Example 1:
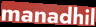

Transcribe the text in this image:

manadhil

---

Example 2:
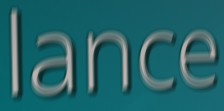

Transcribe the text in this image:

lance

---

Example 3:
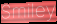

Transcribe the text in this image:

Smiley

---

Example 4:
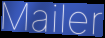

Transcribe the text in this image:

Mailer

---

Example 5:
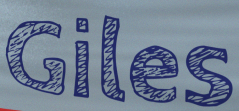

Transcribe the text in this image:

Giles